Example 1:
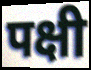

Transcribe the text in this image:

पक्षी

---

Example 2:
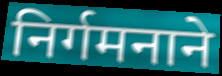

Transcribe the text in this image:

निर्गमनाने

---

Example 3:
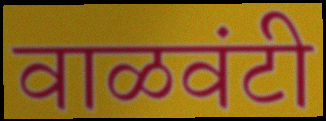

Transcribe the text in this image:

वाळवंटी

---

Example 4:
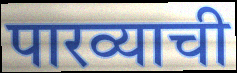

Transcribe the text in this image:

पारव्याची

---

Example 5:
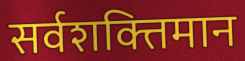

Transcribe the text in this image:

सर्वशक्तिमान